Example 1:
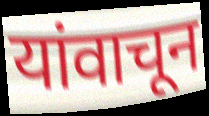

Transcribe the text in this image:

यांवाचून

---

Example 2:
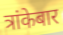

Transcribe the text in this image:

त्रांकेबार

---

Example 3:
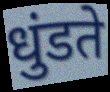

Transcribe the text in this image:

धुंडते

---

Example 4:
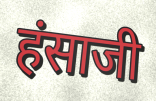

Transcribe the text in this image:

हंसाजी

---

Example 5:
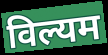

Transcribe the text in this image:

विल्यम